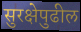
सुरक्षेपुढील